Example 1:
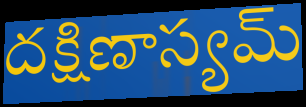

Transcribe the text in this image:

దక్షిణాస్యమ్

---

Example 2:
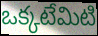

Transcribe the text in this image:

ఒక్కటేమిటి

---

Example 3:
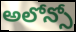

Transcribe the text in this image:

అలోన్సో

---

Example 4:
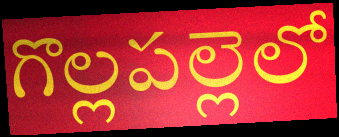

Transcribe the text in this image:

గొల్లపల్లెలో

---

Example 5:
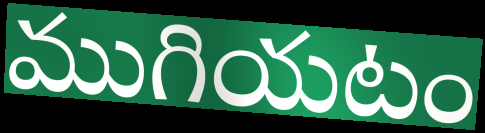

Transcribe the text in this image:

ముగియటం